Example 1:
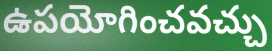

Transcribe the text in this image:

ఉపయోగించవచ్చు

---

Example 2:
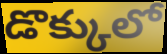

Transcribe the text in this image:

డొక్కులో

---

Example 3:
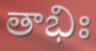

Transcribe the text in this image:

తాభిః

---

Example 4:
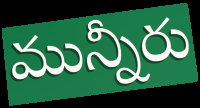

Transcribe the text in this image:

మున్నీరు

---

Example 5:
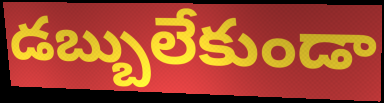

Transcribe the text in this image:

డబ్బులేకుండా